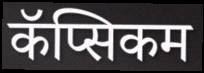
कॅप्सिकम